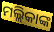
ମଲ୍ଲିକାଙ୍କ